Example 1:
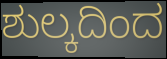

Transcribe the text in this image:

ಶುಲ್ಕದಿಂದ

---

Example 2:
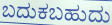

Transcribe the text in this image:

ಬದುಕಬಹುದು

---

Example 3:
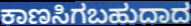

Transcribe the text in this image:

ಕಾಣಸಿಗಬಹುದಾದ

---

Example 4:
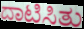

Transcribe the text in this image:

ದಾಟಿಸಿತು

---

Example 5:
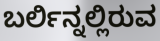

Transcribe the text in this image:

ಬರ್ಲಿನ್ನಲ್ಲಿರುವ